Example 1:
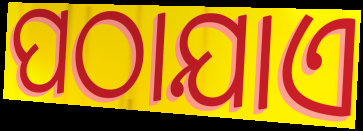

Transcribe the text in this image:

ପଠାଯାଏ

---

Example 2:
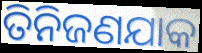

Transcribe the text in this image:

ତିନିଜଣଯାକ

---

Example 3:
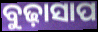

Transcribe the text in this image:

ବୁଢ଼ାସାପ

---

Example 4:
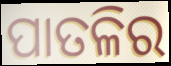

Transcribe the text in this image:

ପାତଳିର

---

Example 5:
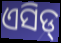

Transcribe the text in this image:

ଏସିଡ୍